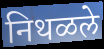
निथळले